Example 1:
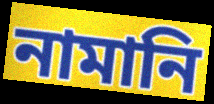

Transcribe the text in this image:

নামানি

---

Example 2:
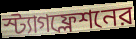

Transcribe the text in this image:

স্ট্যাগফ্লেশনের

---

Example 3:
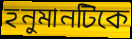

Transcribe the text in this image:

হনুমানটিকে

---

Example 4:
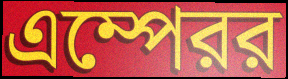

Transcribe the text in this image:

এম্পেরর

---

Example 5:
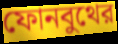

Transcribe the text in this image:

ফোনবুথের